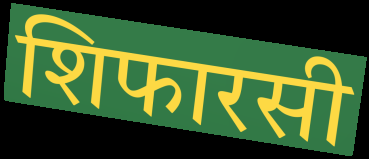
शिफारसी